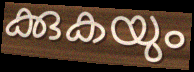
ക്കുകയും